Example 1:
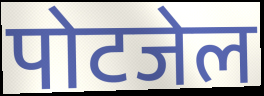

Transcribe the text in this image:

पोटजेल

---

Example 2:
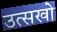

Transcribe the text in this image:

उत्सखो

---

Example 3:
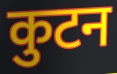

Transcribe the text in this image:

कुटन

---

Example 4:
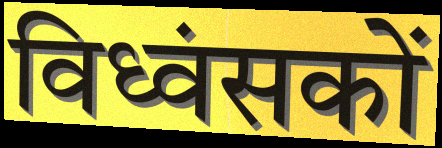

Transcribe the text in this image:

विध्वंसकों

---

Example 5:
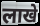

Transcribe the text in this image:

लाखे